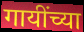
गायींच्या